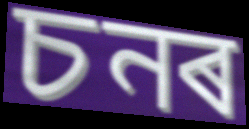
চনৰ